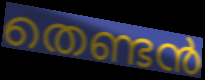
തെണ്ടൻ